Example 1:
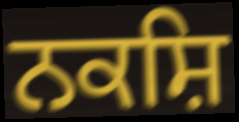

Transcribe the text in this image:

ਨਕਸ਼ਿ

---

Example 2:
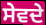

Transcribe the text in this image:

ਸੇਵਦੇ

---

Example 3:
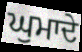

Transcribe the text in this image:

ਘੁਮਾਦੇ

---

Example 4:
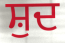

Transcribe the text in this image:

ਸ਼ੁਦ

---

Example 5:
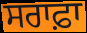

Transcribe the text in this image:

ਸਰਾਫ਼ਾ